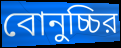
বোনুচ্চির